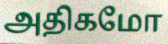
அதிகமோ